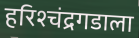
हरिश्चंद्रगडाला